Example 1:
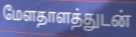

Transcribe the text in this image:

மேளதாளத்துடன்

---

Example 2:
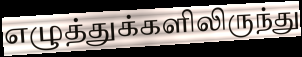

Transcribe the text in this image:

எழுத்துக்களிலிருந்து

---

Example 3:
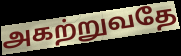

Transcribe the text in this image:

அகற்றுவதே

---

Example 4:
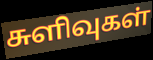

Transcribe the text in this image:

சுளிவுகள்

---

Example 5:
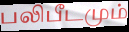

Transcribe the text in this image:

பலிபீடமும்